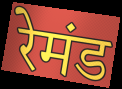
रेमंड